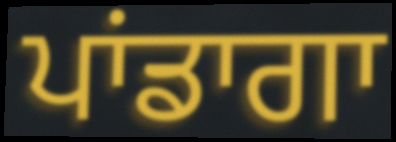
ਪਾਂਡਾਗਾ